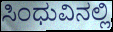
ಸಿಂಧುವಿನಲ್ಲಿ